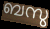
ബസു